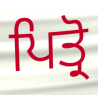
ਪਿਤ੍ਰੋ